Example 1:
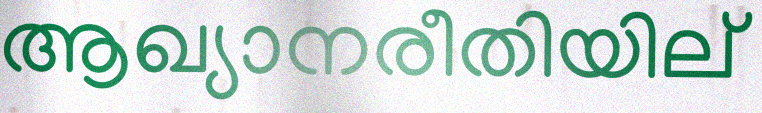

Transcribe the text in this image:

ആഖ്യാനരീതിയില്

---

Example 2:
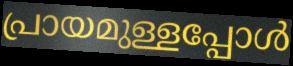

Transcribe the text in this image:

പ്രായമുള്ളപ്പോൾ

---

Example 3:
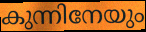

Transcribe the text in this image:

കുന്നിനേയും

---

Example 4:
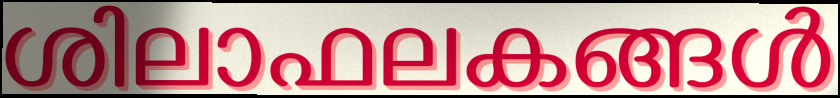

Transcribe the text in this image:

ശിലാഫലകങ്ങൾ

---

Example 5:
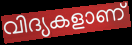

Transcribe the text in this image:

വിദ്യകളാണ്